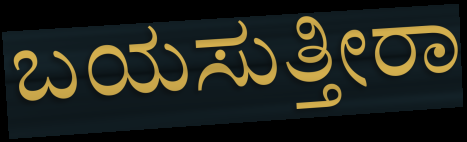
ಬಯಸುತ್ತೀರಾ